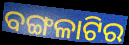
ବଙ୍ଗଳାଟିର